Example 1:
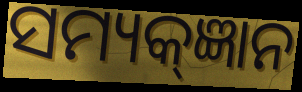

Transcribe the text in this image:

ସମ୍ୟକ୍ଜ୍ଞାନ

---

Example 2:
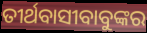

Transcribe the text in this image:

ତୀର୍ଥବାସୀବାବୁଙ୍କର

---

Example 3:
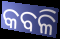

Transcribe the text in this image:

କବଳି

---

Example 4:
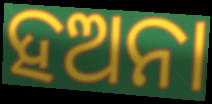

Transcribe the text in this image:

ହଅନା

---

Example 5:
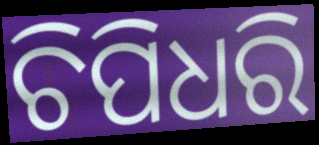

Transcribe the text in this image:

ଚିପିଧରି